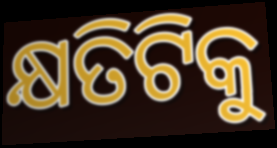
କ୍ଷତିଟିକୁ